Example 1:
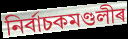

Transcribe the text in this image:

নিৰ্বাচকমণ্ডলীৰ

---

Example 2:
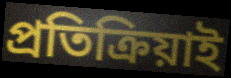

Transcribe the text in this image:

প্ৰতিক্ৰিয়াই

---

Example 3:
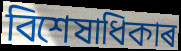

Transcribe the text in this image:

বিশেষাধিকাৰ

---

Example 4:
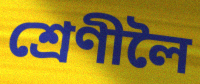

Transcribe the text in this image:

শ্ৰেণীলৈ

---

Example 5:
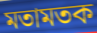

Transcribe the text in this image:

মতামতক